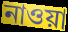
নাওয়া